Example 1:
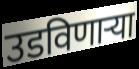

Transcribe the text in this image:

उडविणार्‍या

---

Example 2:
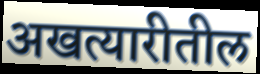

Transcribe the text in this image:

अखत्यारीतील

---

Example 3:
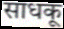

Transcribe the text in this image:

साधकू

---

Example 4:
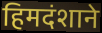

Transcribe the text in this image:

हिमदंशाने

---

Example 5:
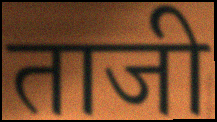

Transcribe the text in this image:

ताजी